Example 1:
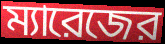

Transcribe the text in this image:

ম্যারেজের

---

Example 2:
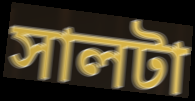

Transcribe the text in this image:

সালটা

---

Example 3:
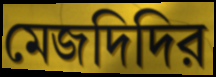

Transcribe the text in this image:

মেজদিদির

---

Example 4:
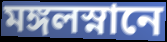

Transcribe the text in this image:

মঙ্গলস্নানে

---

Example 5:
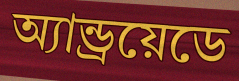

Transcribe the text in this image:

অ্যান্ড্রয়েডে